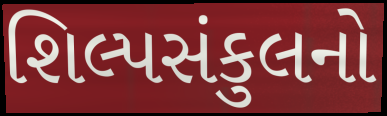
શિલ્પસંકુલનો